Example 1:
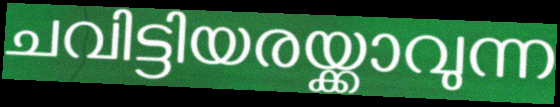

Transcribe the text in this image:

ചവിട്ടിയരയ്ക്കാവുന്ന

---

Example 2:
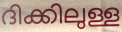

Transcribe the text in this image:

ദിക്കിലുള്ള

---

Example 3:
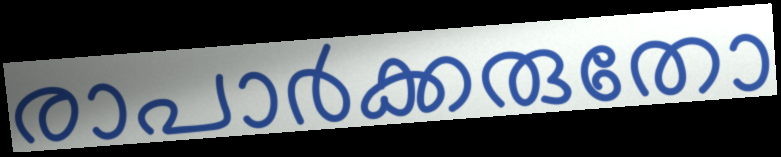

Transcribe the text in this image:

രാപാർക്കരുതോ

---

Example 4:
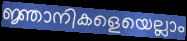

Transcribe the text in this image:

ജ്ഞാനികളെയെല്ലാം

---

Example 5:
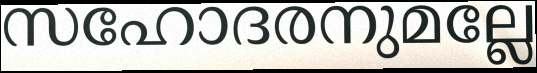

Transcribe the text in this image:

സഹോദരനുമല്ലേ